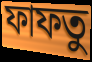
ফাফতু